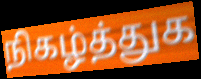
நிகழ்த்துக